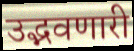
उद्भवणारी